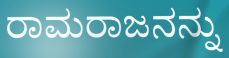
ರಾಮರಾಜನನ್ನು